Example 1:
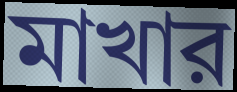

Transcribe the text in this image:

মাখার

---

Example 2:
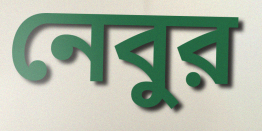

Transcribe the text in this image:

নেবুর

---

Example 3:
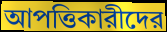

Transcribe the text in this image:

আপত্তিকারীদের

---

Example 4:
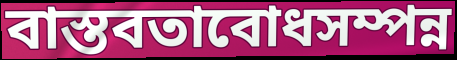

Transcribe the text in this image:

বাস্তবতাবোধসম্পন্ন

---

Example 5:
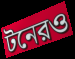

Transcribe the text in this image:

টনেরও